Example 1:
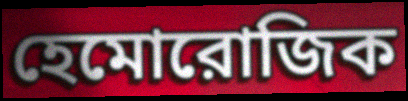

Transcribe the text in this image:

হেমোরোজিক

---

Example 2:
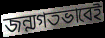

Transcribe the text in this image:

জন্মগতভাবেই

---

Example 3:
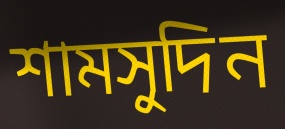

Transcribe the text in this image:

শামসুদিন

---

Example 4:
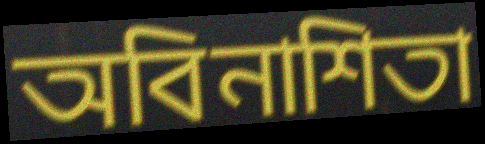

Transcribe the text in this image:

অবিনাশিতা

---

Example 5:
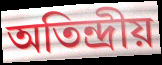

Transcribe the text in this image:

অতিন্দ্রীয়